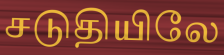
சடுதியிலே